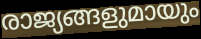
രാജ്യങ്ങളുമായും